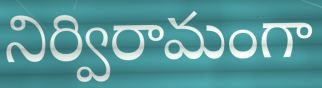
నిర్విరామంగా